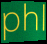
phl